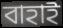
বাহাই